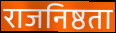
राजनिष्ठता